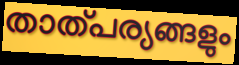
താത്പര്യങ്ങളും